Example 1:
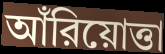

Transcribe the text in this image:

আঁরিয়োত্তা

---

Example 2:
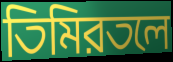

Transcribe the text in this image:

তিমিরতলে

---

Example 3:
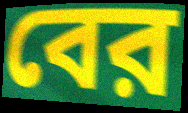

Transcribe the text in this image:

বের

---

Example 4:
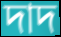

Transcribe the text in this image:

দাদ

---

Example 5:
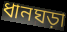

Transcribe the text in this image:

ধানঘড়া